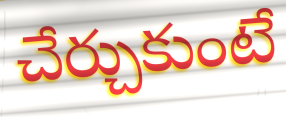
చేర్చుకుంటే